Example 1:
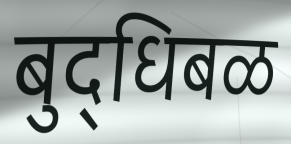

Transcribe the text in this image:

बुद्धिबळ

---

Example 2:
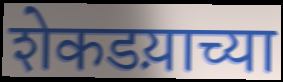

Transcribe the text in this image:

शेकडय़ाच्या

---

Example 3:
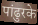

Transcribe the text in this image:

पांढुरके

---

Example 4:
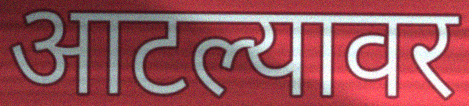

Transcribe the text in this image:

आटल्यावर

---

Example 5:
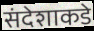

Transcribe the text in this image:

संदेशाकडे